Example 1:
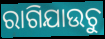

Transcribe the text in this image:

ରାଗିଯାଉଚୁ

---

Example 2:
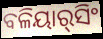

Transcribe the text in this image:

ବଳିୟାର୍‌ସିଂ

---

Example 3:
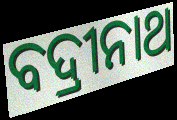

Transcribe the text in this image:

ବଦ୍ରୀନାଥ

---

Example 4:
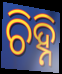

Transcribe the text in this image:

ଚିହ୍ନି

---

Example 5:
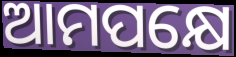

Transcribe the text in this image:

ଆମପକ୍ଷେ